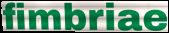
fimbriae